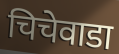
चिचेवाडा